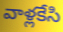
వాళ్లకేసి